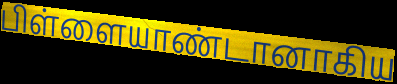
பிள்ளையாண்டானாகிய